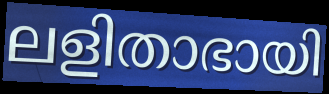
ലളിതാഭായി